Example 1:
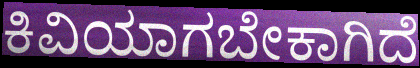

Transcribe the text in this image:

ಕಿವಿಯಾಗಬೇಕಾಗಿದೆ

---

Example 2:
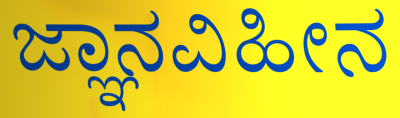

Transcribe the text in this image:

ಜ್ಞಾನವಿಹೀನ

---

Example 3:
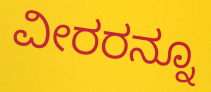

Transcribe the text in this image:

ವೀರರನ್ನೂ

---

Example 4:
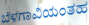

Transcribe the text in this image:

ಬೆಳಗಾವಿಯಂತಹ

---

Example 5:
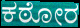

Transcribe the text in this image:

ಕಠೋರ